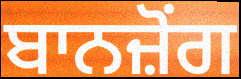
ਬਾਨਜ਼ੋਂਗ